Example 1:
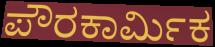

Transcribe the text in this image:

ಪೌರಕಾರ್ಮಿಕ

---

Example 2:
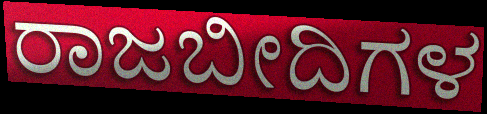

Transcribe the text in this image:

ರಾಜಬೀದಿಗಳ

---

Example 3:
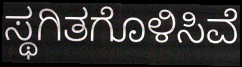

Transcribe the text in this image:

ಸ್ಥಗಿತಗೊಳಿಸಿವೆ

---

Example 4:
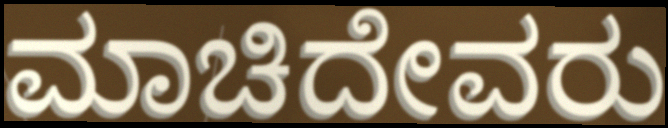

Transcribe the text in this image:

ಮಾಚಿದೇವರು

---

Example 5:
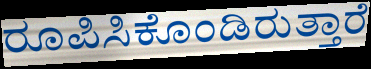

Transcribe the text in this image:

ರೂಪಿಸಿಕೊಂಡಿರುತ್ತಾರೆ